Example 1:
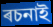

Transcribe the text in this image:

ৰচনাই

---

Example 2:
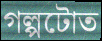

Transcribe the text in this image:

গল্পটোত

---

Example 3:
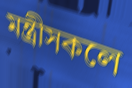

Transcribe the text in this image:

মন্ত্ৰীসকলে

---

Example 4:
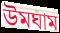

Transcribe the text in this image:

উমঘাম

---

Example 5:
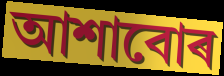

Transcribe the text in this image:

আশাবোৰ